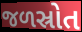
જળસ્રોત